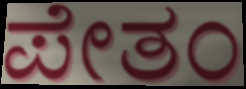
ಪೇತಂ